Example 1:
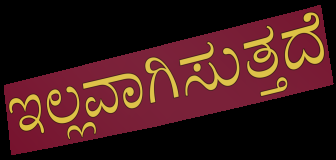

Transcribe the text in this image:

ಇಲ್ಲವಾಗಿಸುತ್ತದೆ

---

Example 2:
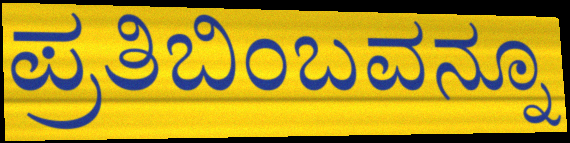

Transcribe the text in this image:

ಪ್ರತಿಬಿಂಬವನ್ನೂ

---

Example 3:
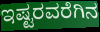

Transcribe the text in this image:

ಇಷ್ಟರವರೆಗಿನ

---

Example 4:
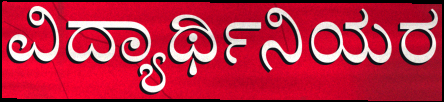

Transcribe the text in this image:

ವಿದ್ಯಾರ್ಥಿನಿಯರ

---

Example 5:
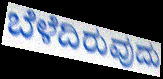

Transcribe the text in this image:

ಬೆಳೆದಿರುವುದು